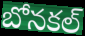
బోనకల్